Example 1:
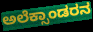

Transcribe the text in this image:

ಅಲೆಕ್ಸಾಂಡರನ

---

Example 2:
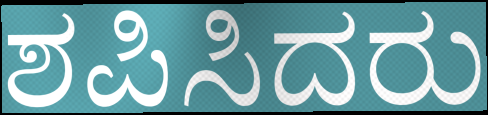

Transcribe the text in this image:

ಶಪಿಸಿದರು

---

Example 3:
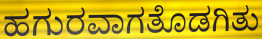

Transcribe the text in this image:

ಹಗುರವಾಗತೊಡಗಿತು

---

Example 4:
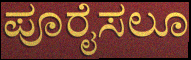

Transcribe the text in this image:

ಪೂರೈಸಲೂ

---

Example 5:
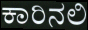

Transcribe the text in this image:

ಕಾರಿನಲಿ